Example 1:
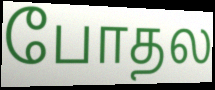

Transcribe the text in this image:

போதல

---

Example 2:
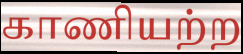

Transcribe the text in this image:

காணியற்ற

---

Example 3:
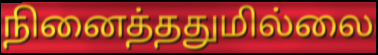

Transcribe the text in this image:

நினைத்ததுமில்லை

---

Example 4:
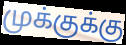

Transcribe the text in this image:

முக்குக்கு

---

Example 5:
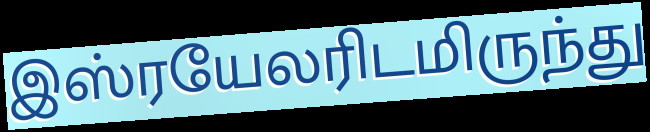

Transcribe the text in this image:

இஸ்ரயேலரிடமிருந்து